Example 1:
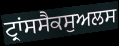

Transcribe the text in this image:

ਟ੍ਰਾਂਸਸੈਕਸੁਅਲਸ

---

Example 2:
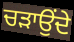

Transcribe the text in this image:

ਚੜਾਉਂਦੇ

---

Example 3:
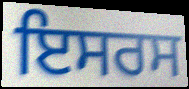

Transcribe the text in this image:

ਇਸਰਸ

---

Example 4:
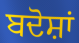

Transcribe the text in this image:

ਬਦੋਸ਼ਾਂ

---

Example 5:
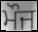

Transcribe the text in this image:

ਮੌਜ